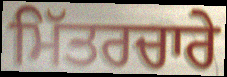
ਮਿੱਤਰਚਾਰੇ